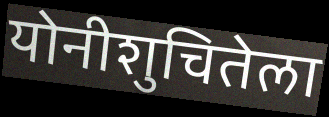
योनीशुचितेला